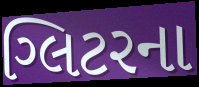
ગ્લિટરના